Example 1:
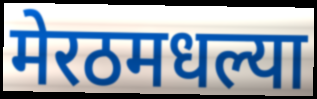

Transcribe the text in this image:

मेरठमधल्या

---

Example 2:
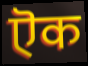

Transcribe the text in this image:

ऎक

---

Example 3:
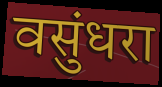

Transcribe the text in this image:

वसुंधरा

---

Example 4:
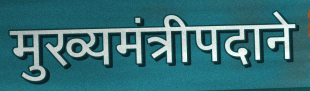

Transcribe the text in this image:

मुख्यमंत्रीपदाने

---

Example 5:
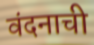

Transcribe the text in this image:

वंदनाची